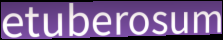
etuberosum